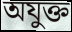
অযুক্ত